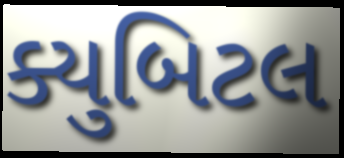
ક્યુબિટલ